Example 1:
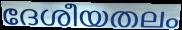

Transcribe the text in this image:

ദേശീയതലം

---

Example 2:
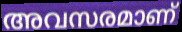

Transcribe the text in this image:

അവസരമാണ്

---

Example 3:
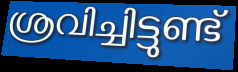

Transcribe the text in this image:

ശ്രവിച്ചിട്ടുണ്ട്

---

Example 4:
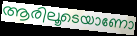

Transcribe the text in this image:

ആരിലൂടെയാണോ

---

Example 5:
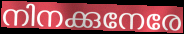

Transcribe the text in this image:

നിനക്കുനേരേ